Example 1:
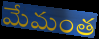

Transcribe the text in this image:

మేమంత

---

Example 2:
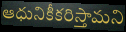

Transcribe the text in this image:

ఆధునికీకరిస్తామని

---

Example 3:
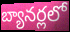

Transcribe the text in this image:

బ్యానర్లలో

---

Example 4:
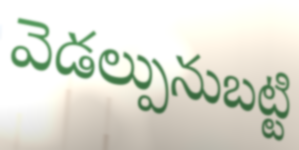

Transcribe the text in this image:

వెడల్పునుబట్టి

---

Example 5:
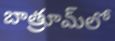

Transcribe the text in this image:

బాత్రూమ్‌లో